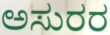
ಅಸುರರ